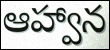
ఆహ్వాన